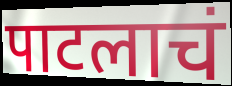
पाटलाचं